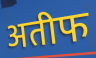
अतीफ